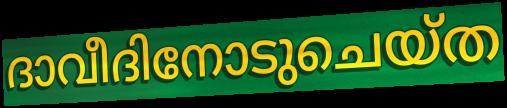
ദാവീദിനോടുചെയ്ത